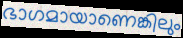
ഭാഗമായാണെങ്കിലും